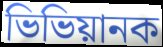
ভিভিয়ানক